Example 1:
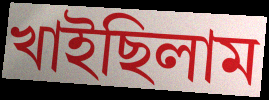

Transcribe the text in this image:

খাইছিলাম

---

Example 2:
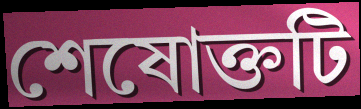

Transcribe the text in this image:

শেষোক্তটি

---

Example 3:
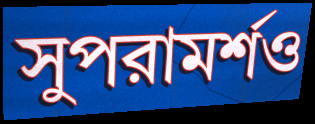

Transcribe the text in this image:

সুপরামর্শও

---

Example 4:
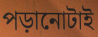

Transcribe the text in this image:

পড়ানোটাই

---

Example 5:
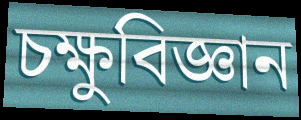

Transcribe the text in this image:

চক্ষুবিজ্ঞান